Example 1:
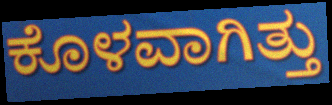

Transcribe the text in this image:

ಕೊಳವಾಗಿತ್ತು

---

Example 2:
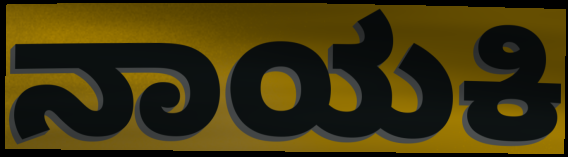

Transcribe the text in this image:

ನಾಯಕಿ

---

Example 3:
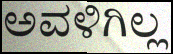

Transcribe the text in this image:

ಅವಳಿಗಿಲ್ಲ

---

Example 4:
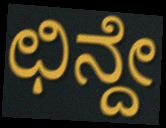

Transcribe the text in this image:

ಛಿನ್ದೇ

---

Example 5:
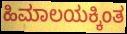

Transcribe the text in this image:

ಹಿಮಾಲಯಕ್ಕಿಂತ